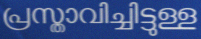
പ്രസ്താവിച്ചിട്ടുള്ള